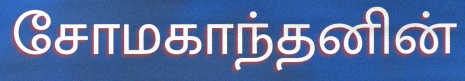
சோமகாந்தனின்